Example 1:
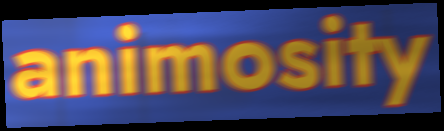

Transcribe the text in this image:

animosity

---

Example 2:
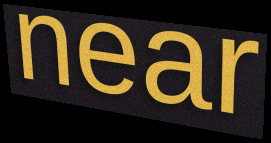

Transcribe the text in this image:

near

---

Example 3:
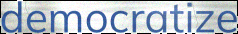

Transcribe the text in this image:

democratize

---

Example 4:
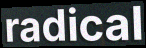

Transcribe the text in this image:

radical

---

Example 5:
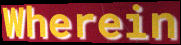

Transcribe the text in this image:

Wherein